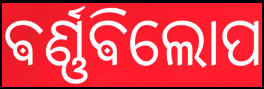
ଵର୍ଣ୍ଣଵିଲୋପ